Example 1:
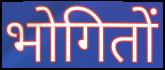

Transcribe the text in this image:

भोगितों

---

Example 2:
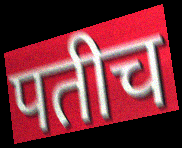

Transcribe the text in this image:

पतीच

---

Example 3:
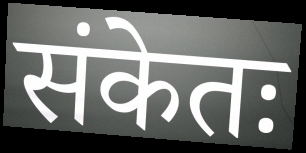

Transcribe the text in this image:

संकेतः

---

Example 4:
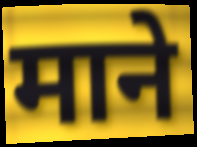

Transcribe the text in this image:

माने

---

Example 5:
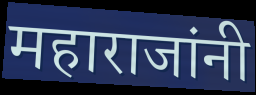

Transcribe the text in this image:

महाराजांनी